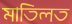
মাতিলত